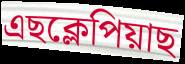
এছক্লেপিয়াছ